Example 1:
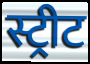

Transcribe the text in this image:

स्ट्रीट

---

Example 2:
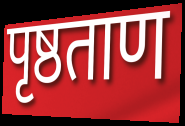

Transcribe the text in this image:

पृष्ठताण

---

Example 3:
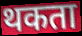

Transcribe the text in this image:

थकता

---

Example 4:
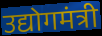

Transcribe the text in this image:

उद्योगमंत्री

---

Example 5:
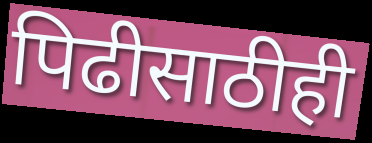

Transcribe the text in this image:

पिढीसाठीही